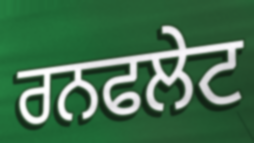
ਰਨਫਲੇਟ